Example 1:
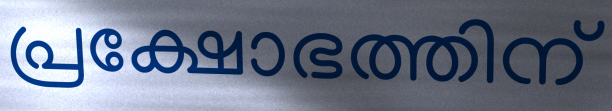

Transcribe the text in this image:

പ്രക്ഷോഭത്തിന്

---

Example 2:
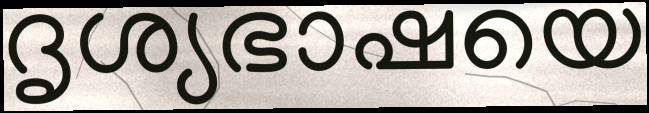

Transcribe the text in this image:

ദൃശ്യഭാഷയെ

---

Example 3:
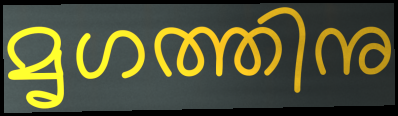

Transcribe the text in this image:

മൃഗത്തിനു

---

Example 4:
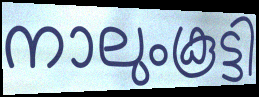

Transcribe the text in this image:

നാലുംകൂട്ടി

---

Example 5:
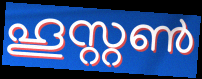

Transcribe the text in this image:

ഹൂസ്റ്റൺ